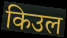
किउल